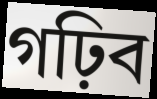
গঢ়িব